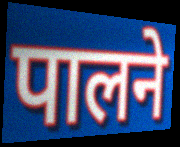
पालने